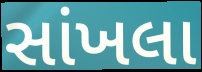
સાંખલા